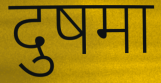
दुषमा